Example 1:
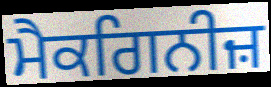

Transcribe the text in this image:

ਮੈਕਗਿਨੀਜ਼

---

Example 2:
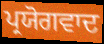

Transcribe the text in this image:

ਪ੍ਰਯੋਗਵਾਦ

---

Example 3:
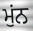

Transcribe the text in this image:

ਮੁਂਨ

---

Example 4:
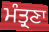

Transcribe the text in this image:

ਮੰਤ੍ਰਣਾ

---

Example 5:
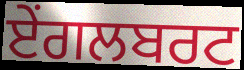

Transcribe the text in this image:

ਏਂਗਲਬਰਟ